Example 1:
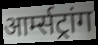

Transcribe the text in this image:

आर्म्सट्रांग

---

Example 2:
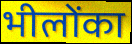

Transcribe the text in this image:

भीलोंका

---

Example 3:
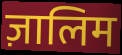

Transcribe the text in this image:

ज़ालिम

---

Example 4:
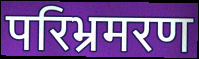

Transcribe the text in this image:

परिभ्रमरण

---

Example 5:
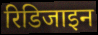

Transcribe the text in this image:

रिडिजाइन